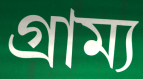
গ্ৰাম্য